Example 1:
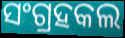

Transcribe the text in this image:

ସଂଗ୍ରହକଲ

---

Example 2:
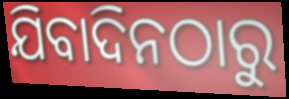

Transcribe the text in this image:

ଯିବାଦିନଠାରୁ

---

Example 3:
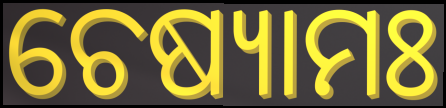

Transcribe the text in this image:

ଚେଷ୍ୟାମଃ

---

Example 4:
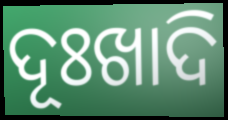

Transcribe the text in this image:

ଦୂଃଖାଦି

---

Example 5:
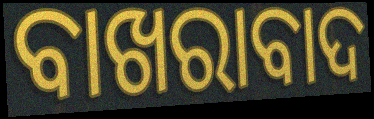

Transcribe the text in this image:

ବାଖରାବାଦ